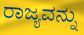
ರಾಜ್ಯವನ್ನು